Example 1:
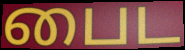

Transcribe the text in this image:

பைட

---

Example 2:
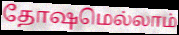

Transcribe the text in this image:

தோஷமெல்லாம்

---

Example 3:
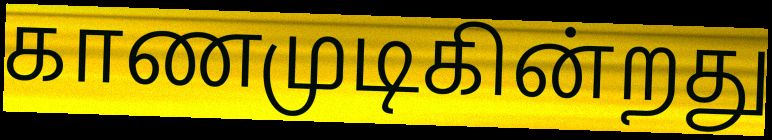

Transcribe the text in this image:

காணமுடிகின்றது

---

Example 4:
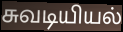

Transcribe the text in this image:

சுவடியியல்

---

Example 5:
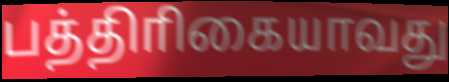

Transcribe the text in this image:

பத்திரிகையாவது